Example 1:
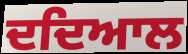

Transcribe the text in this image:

ਦਦਿਆਲ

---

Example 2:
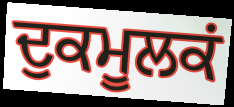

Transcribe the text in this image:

ਦੁਕਮੂਲਕਂ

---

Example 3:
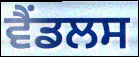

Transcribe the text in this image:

ਵੈਂਡਲਸ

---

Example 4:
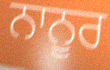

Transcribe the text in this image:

ਨਾਨੂਰ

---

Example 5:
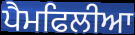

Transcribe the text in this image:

ਪੈਮਫਿਲੀਆ